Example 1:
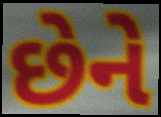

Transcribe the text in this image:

છેને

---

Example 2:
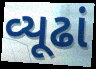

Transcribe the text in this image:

વ્યૂઢાં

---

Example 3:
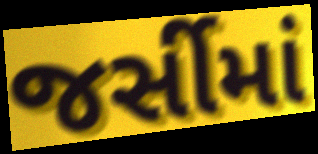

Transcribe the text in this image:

જર્સીમાં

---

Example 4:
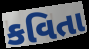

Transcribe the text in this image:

કવિતા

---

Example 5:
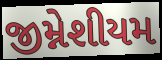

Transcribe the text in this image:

જીમ્નેશીયમ